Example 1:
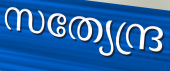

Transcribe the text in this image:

സത്യേന്ദ്ര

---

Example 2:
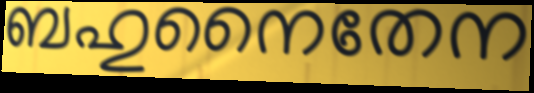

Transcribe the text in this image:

ബഹുനൈതേന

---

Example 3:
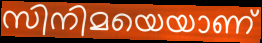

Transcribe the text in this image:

സിനിമയെയാണ്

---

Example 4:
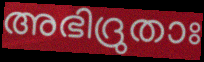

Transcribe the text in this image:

അഭിദ്രുതാഃ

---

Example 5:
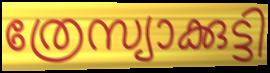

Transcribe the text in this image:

ത്രേസ്യാക്കുട്ടി